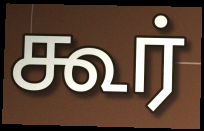
கூர்